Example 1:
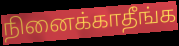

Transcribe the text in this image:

நினைக்காதீங்க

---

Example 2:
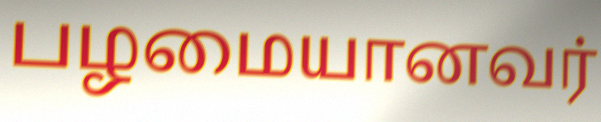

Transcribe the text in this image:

பழமையானவர்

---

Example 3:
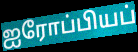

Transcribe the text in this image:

ஐரோப்பியப்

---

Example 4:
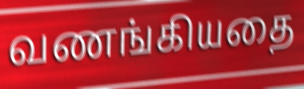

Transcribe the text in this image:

வணங்கியதை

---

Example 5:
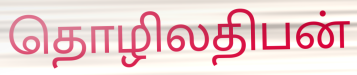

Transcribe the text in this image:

தொழிலதிபன்